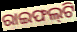
ରାଇଫଲ୍‌ଟି